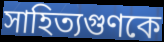
সাহিত্যগুণকে